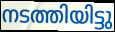
നടത്തിയിട്ടു